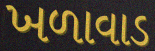
ખળાવાડ